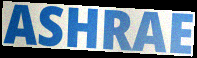
ASHRAE